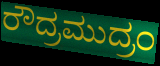
ರೌದ್ರಮುದ್ರಂ